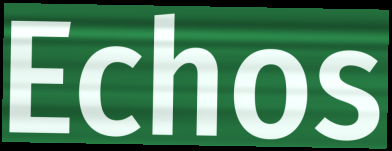
Echos